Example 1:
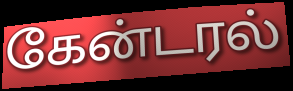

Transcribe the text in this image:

கேன்டரல்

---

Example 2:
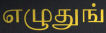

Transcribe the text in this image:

எழுதுங்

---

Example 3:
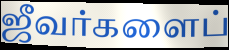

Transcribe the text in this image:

ஜீவர்களைப்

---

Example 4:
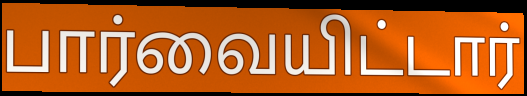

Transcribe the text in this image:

பார்வையிட்டார்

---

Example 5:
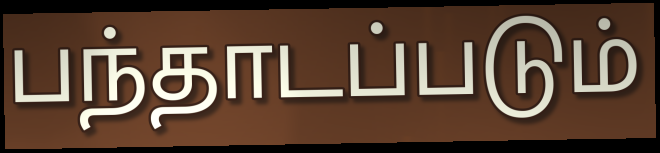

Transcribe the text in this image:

பந்தாடப்படும்